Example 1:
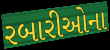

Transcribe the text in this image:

રબારીઓના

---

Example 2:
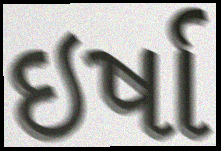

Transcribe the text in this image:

ઇર્ષા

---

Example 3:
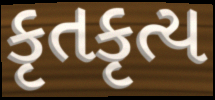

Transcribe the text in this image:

કૃતકૃત્ય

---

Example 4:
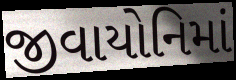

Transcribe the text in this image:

જીવાયોનિમાં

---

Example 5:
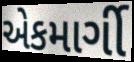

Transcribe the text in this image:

એકમાર્ગી